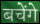
बचेंगे